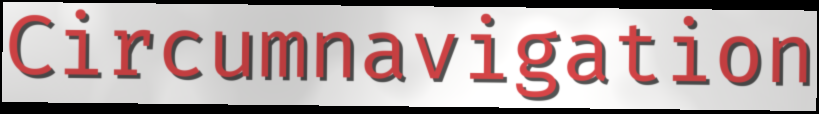
Circumnavigation